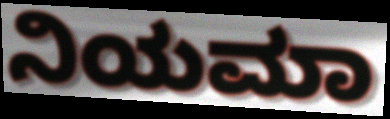
ನಿಯಮಾ